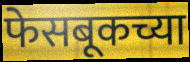
फेसबूकच्या